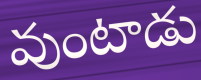
వుంటాడు